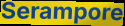
Serampore